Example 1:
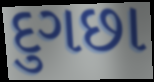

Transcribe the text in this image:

દુગછા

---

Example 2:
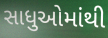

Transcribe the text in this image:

સાધુઓમાંથી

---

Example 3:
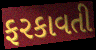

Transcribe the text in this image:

ફરકાવતી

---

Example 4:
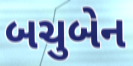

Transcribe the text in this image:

બચુબેન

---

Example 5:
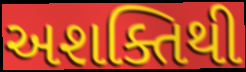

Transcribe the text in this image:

અશક્તિથી